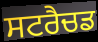
ਸਟਰੈਚਡ